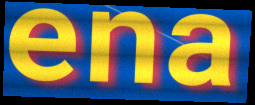
ena